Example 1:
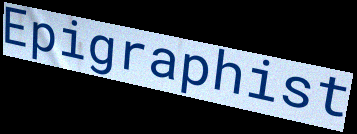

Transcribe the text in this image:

Epigraphist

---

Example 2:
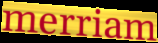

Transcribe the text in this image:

merriam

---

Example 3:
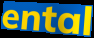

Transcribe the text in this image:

ental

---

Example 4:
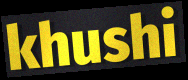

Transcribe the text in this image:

khushi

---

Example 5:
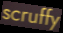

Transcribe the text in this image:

scruffy